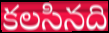
కలసినది